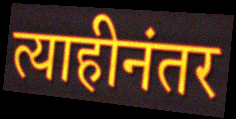
त्याहीनंतर